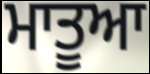
ਮਾਤੂਆ